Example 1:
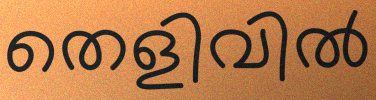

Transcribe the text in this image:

തെളിവിൽ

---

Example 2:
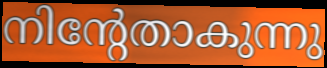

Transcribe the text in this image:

നിന്റേതാകുന്നു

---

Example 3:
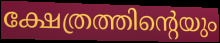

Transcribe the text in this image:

ക്ഷേത്രത്തിന്റെയും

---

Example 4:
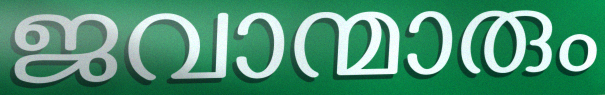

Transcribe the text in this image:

ജവാന്മാരും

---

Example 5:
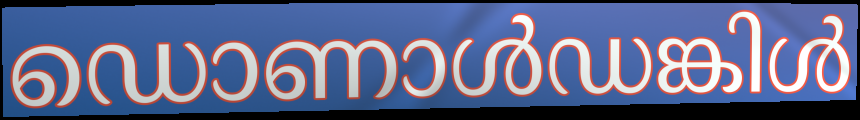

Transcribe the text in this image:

ഡൊണാൾഡങ്കിൾ